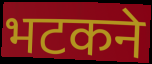
भटकने